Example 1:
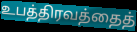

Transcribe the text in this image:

உபத்திரவத்தைத்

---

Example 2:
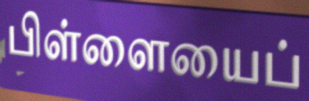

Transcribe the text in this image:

பிள்ளையைப்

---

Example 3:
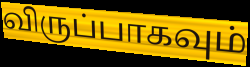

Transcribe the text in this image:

விருப்பாகவும்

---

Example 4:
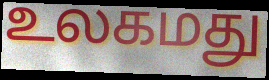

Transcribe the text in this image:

உலகமது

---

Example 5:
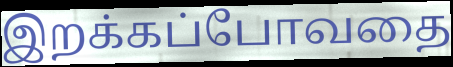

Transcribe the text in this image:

இறக்கப்போவதை